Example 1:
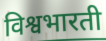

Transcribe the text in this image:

विश्वभारती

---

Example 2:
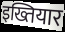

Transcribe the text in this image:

इख्तियार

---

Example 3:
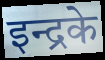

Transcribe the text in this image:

इन्द्रके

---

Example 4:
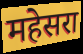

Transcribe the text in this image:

महेसरा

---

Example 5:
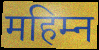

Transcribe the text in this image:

महिम्न